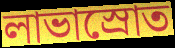
লাভাস্রোত